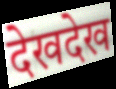
देखदेख